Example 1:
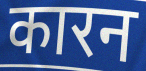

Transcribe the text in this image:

कारन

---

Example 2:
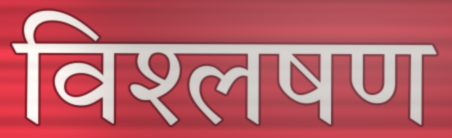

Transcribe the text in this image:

विश्लषण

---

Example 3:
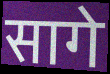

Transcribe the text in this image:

सागे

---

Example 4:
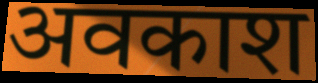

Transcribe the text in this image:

अवकाश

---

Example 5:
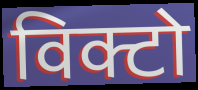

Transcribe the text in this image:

विक्टो